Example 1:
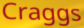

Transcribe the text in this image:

Craggs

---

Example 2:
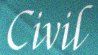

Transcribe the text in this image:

Civil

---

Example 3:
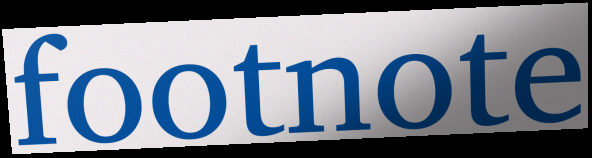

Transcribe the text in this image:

footnote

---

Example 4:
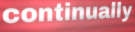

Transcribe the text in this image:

continually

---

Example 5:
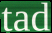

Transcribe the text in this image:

tad